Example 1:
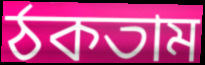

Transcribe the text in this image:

ঠকতাম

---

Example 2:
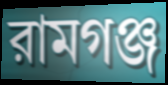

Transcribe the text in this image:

রামগঞ্জ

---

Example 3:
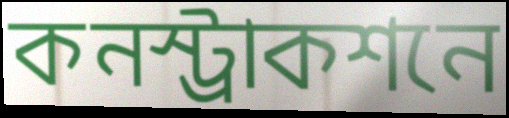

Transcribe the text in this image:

কনস্ট্রাকশনে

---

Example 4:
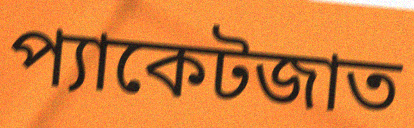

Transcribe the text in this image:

প্যাকেটজাত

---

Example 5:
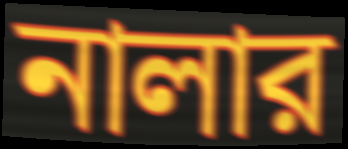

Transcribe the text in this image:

নালার